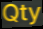
Qty